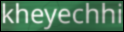
kheyechhi